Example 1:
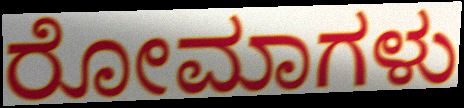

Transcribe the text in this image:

ರೋಮಾಗಳು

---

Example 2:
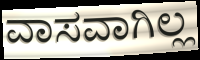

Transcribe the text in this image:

ವಾಸವಾಗಿಲ್ಲ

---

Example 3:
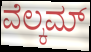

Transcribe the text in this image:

ವೆಲ್ಕಮ್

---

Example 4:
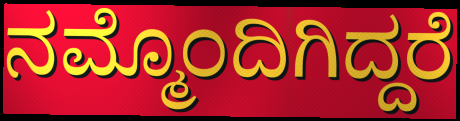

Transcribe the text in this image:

ನಮ್ಮೊಂದಿಗಿದ್ದರೆ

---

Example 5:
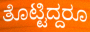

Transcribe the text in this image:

ತೊಟ್ಟಿದ್ದರೂ